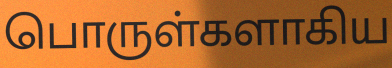
பொருள்களாகிய